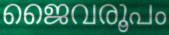
ജൈവരൂപം